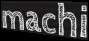
machi